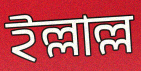
ইল্লাল্ল